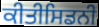
ਕੀਤੀਸਿਡਨੀ